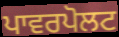
ਪਾਵਰਪੋਲਟ